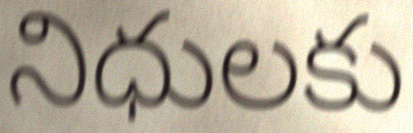
నిధులకు